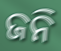
ଜନି